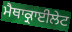
ਮੈਥਾਕ੍ਰਾਈਲੇਟ